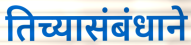
तिच्यासंबंधाने